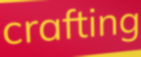
crafting